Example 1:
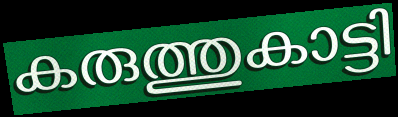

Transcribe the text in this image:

കരുത്തുകാട്ടി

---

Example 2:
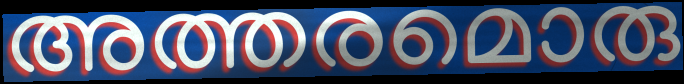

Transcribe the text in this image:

അത്തരമൊരു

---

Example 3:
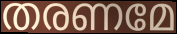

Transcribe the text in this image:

തരണമേ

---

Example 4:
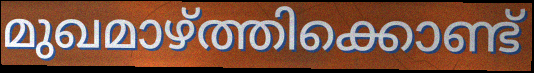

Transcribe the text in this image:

മുഖമാഴ്ത്തിക്കൊണ്ട്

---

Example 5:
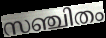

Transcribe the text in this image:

സഞ്ചിതം